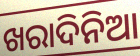
ଖରାଦିନିଆ